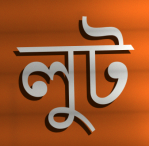
লুট